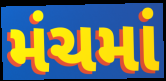
મંચમાં